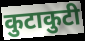
कुटाकुटी